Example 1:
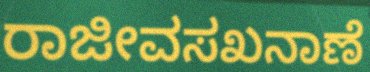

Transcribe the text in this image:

ರಾಜೀವಸಖನಾಣೆ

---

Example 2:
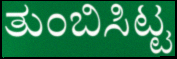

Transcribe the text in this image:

ತುಂಬಿಸಿಟ್ಟ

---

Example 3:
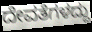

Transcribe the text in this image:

ದೇವತೆಗಳದ್ದು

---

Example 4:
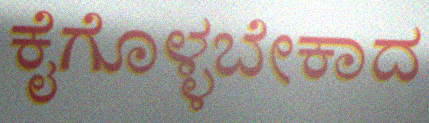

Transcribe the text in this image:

ಕೈಗೊಳ್ಳಬೇಕಾದ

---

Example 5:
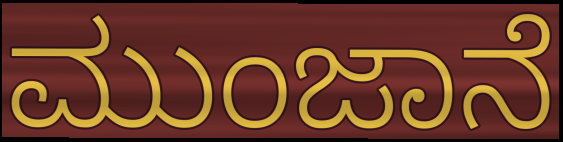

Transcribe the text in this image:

ಮುಂಜಾನೆ